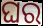
ଘର